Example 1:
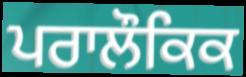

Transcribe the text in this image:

ਪਰਾਲੌਕਿਕ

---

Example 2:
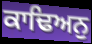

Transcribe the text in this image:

ਕਾਢਿਅਨੁ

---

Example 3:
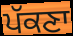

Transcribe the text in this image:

ਪੱਕਣਾ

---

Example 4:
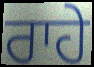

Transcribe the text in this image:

ਰਾਹੇ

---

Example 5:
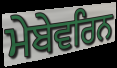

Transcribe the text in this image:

ਮੇਬੇਵਰਿਨ